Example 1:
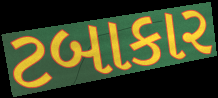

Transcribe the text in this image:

ટબાકાર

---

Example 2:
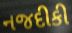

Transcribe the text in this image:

નજદીકી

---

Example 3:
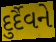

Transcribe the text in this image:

દુર્દૈવને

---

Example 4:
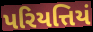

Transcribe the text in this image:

પરિયત્તિયં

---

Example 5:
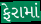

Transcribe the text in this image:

ફેરામાં